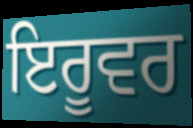
ਇਰੂਵਰ